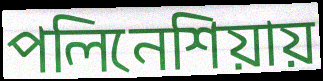
পলিনেশিয়ায়